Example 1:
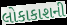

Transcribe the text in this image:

લોકાકાશની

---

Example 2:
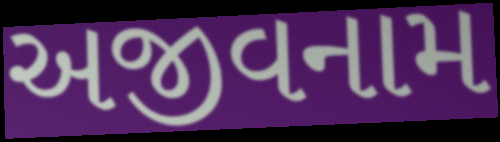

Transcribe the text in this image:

અજીવનામ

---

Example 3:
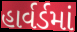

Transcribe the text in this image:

હાર્વર્ડમાં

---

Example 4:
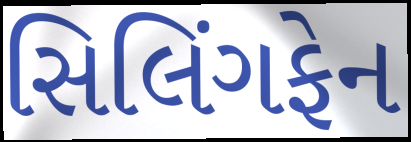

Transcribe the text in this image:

સિલિંગફેન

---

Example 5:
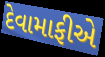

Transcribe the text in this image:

દેવામાફીએ